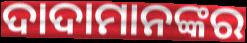
ଦାଦାମାନଙ୍କର